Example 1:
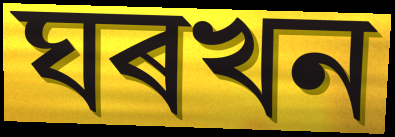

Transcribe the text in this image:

ঘৰখন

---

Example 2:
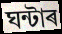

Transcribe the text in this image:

ঘন্টাৰ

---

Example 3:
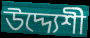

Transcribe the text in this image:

উদ্দ্যেশী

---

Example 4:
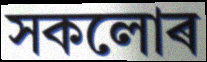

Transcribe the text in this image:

সকলোৰ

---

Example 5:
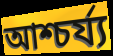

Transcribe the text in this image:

আশ্চৰ্য্য